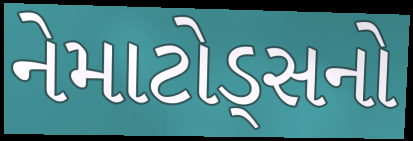
નેમાટોડ્સનો